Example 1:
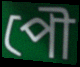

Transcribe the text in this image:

পৌ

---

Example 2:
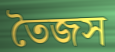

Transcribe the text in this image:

তৈজস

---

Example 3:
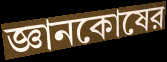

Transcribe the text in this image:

জ্ঞানকোষের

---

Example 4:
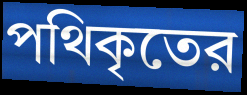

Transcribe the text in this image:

পথিকৃতের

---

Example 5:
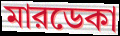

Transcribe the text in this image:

মারডেকা